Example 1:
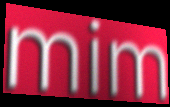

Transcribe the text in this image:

mim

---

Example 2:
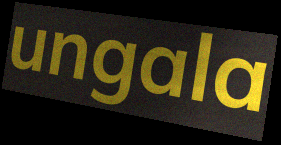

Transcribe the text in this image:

ungala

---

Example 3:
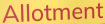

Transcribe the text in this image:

Allotment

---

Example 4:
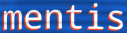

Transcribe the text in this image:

mentis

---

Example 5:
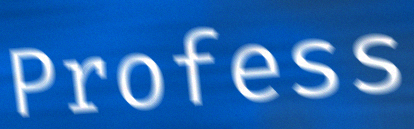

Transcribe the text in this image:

Profess